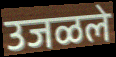
उजळले